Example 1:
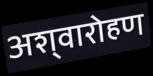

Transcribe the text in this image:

अश्वारोहण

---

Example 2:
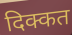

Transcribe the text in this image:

दिक्कत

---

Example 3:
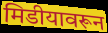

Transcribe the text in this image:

मिडीयावरून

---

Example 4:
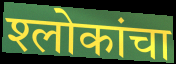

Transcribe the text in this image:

श्लोकांचा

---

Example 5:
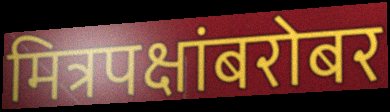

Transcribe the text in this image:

मित्रपक्षांबरोबर